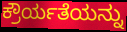
ಕ್ರೌರ್ಯತೆಯನ್ನು